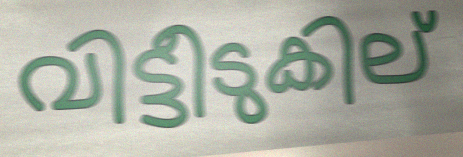
വിട്ടീടുകില്